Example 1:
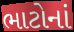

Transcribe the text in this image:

ભાટોનાં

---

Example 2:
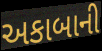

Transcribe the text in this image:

અકાબાની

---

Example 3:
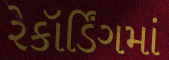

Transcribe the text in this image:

રેકૉર્ડિંગમાં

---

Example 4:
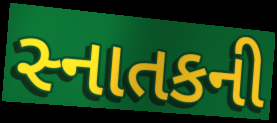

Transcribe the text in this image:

સ્નાતકની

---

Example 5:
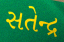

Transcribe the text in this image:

સતેન્દ્ર